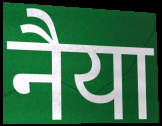
नैया